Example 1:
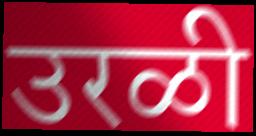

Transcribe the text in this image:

उरळी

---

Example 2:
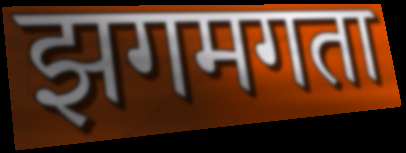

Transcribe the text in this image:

झगमगता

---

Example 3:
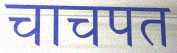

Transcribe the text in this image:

चाचपत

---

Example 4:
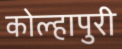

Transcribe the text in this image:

कोल्हापुरी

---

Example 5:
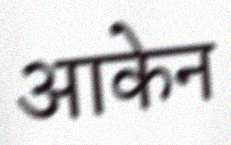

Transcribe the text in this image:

आकेन